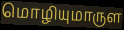
மொழியுமாருள